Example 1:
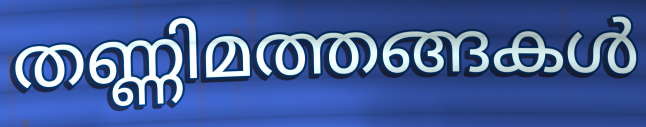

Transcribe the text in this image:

തണ്ണിമത്തങ്ങകൾ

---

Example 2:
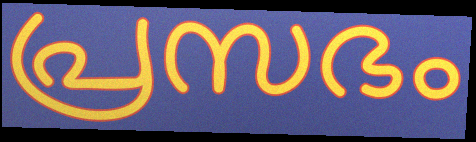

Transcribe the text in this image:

പ്രസഭം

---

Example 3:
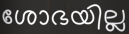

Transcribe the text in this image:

ശോഭയില്ല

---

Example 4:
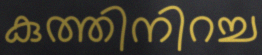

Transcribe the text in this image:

കുത്തിനിറച്ച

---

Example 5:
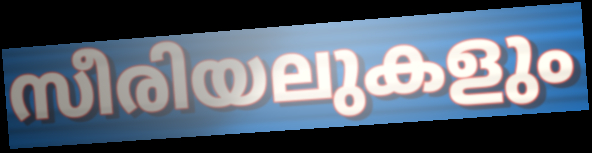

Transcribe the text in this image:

സീരിയലുകളും